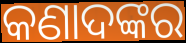
କଣାଦଙ୍କର